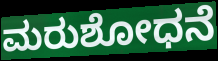
ಮರುಶೋಧನೆ